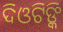
ଦିଓଟିଙ୍କି